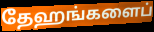
தேஹங்களைப்